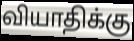
வியாதிக்கு